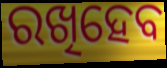
ରଖିହେବ